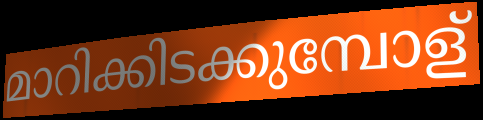
മാറിക്കിടക്കുമ്പോള്